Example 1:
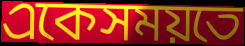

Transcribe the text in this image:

একেসময়তে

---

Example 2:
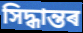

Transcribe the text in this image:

সিদ্ধান্তৰ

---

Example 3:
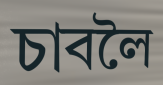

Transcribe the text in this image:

চাবলৈ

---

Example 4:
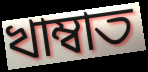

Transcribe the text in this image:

খাম্বাত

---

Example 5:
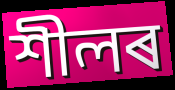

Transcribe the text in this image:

শীলৰ